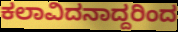
ಕಲಾವಿದನಾದ್ದರಿಂದ